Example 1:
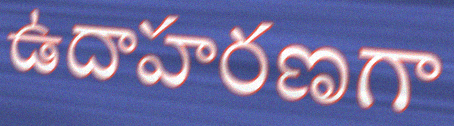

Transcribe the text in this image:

ఉదాహరణగా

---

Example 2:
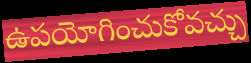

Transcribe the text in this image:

ఉపయోగించుకోవచ్చు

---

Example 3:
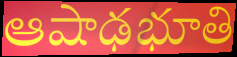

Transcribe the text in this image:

ఆషాఢభూతి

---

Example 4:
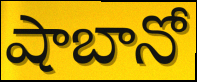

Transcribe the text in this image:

షాబానో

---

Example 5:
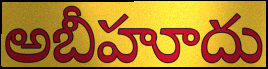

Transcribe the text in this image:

అబీహూదు